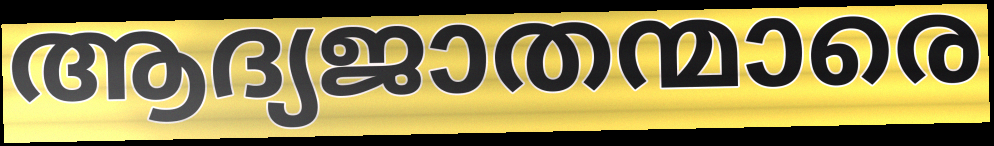
ആദ്യജാതന്മാരെ